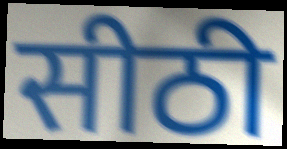
सीठी